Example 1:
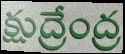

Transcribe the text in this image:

క్షుద్రేంద్ర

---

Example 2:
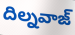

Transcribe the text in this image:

దిల్నవాజ్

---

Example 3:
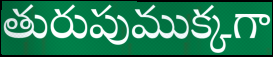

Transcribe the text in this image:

తురుపుముక్కగా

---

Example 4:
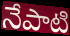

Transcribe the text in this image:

నేపాటి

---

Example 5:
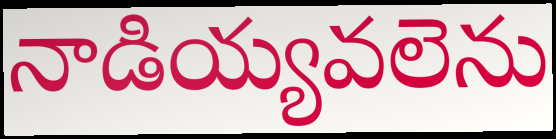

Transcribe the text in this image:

నాడియ్యవలెను